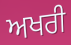
ਅਖਰੀ